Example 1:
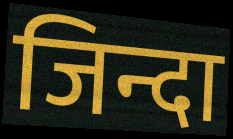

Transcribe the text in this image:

जिन्दा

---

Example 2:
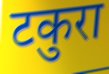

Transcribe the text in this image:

टकुरा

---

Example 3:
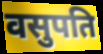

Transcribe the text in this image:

वसुपति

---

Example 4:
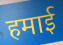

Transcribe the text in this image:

हमाई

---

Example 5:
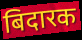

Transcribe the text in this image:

बिदारक